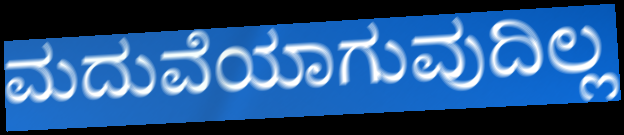
ಮದುವೆಯಾಗುವುದಿಲ್ಲ